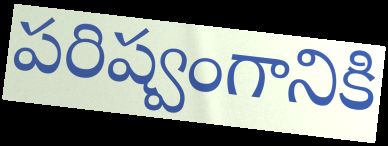
పరిష్వంగానికి